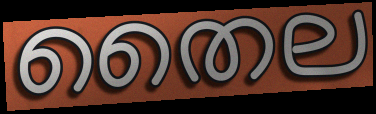
തൈല